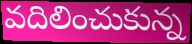
వదిలించుకున్న